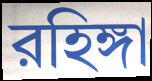
রহিঙ্গা